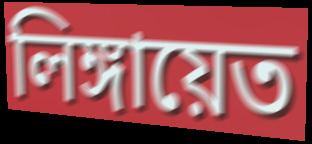
লিঙ্গায়েত